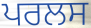
ਪਰਲਸ